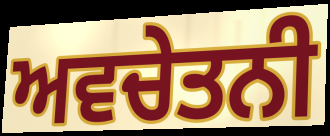
ਅਵਚੇਤਨੀ